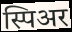
स्पिअर